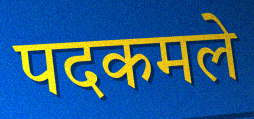
पदकमले